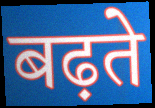
बढ़ते